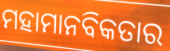
ମହାମାନବିକତାର